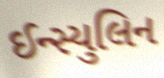
ઈન્સ્યુલિન